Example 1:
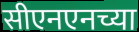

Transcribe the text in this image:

सीएनएनच्या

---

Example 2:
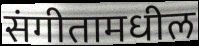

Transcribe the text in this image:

संगीतामधील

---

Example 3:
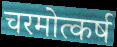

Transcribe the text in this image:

चरमोत्कर्ष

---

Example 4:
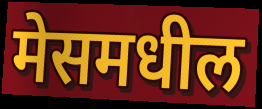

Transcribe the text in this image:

मेसमधील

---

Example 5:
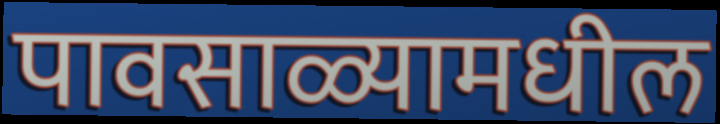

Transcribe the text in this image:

पावसाळ्यामधील